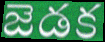
జెడక